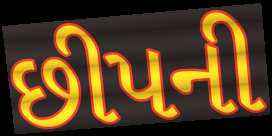
છીપની